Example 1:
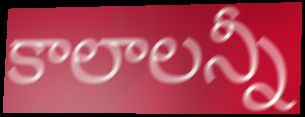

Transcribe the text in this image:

కాలాలన్నీ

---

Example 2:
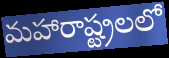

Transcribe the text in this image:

మహారాష్ట్రలలో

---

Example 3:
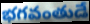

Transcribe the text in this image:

భగవంతుడే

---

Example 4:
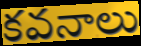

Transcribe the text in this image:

కవనాలు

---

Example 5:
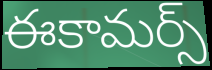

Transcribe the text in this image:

ఈకామర్స్